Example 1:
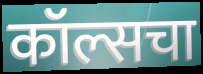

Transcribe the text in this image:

कॉल्सचा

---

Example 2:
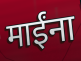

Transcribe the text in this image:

माईंना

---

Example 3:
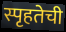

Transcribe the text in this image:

स्पृहतेची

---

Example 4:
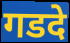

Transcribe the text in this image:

गडदे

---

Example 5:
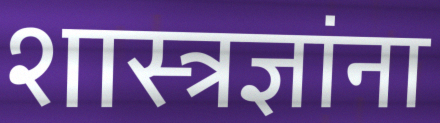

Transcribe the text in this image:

शास्त्रज्ञांना